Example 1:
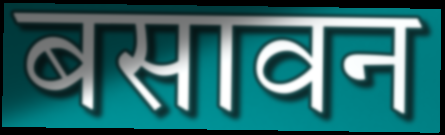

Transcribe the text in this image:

बसावन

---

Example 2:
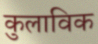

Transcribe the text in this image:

कुलाविक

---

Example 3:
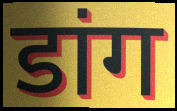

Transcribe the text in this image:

डांग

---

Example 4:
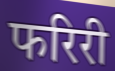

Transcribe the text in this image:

फरिरी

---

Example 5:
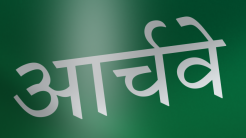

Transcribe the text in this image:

आर्चवे